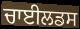
ਚਾਈਲਡਸ